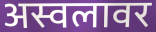
अस्वलावर